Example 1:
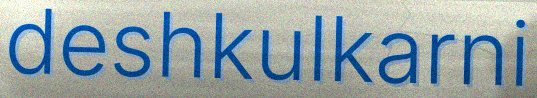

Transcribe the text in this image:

deshkulkarni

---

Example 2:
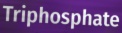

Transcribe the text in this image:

Triphosphate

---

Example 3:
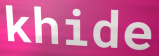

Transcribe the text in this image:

khide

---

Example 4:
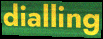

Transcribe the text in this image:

dialling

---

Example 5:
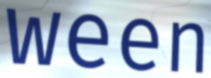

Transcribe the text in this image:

ween